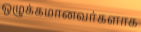
ஒழுக்கமானவர்களாக